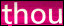
thou